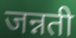
जन्नती